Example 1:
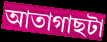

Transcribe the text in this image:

আতাগাছটা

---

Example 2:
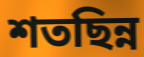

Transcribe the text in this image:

শতছিন্ন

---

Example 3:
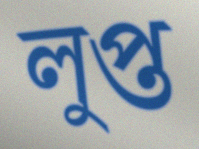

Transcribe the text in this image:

লুপ্ত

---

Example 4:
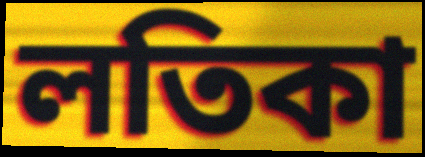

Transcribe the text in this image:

লতিকা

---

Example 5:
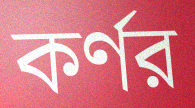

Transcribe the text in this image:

কর্ণর